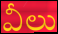
వీలు